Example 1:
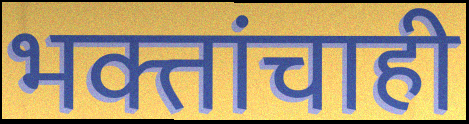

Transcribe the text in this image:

भक्तांचाही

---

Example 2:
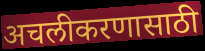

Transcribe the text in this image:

अचलीकरणासाठी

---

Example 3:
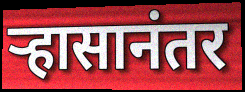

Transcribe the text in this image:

ऱ्हासानंतर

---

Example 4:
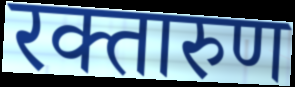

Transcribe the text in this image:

रक्तारुण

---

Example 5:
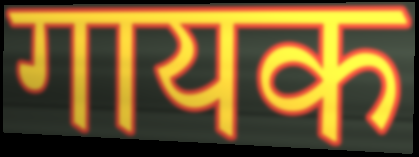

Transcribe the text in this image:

गायक